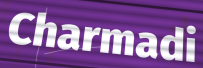
Charmadi